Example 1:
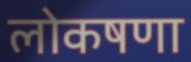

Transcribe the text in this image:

लोकषणा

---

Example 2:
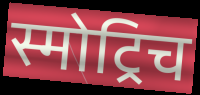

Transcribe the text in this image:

स्मोट्रिच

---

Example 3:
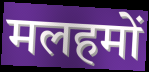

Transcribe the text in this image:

मलहमों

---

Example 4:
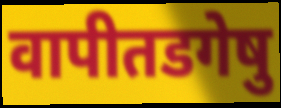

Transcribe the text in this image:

वापीतडगेषु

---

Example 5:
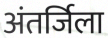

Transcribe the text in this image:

अंतर्जिला